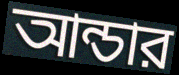
আন্ডার